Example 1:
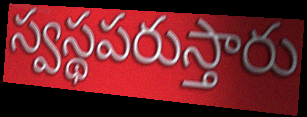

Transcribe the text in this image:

స్వస్థపరుస్తారు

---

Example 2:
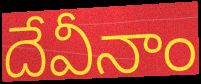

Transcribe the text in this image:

దేవీనాం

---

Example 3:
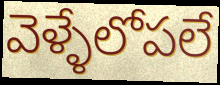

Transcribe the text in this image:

వెళ్ళేలోపలే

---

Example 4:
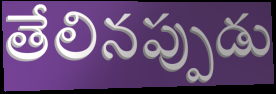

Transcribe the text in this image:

తేలినప్పుడు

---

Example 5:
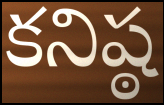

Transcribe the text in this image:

కనిష్ఠ